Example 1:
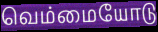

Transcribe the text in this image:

வெம்மையோடு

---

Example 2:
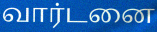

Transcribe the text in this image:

வார்டனை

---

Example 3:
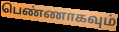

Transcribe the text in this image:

பெண்ணாகவும்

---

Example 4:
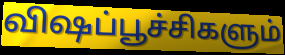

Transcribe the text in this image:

விஷப்பூச்சிகளும்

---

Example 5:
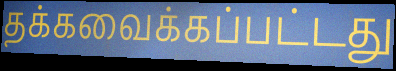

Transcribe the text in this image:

தக்கவைக்கப்பட்டது